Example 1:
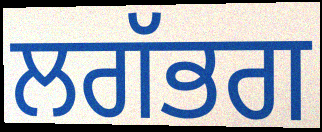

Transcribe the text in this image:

ਲਗੱਭਗ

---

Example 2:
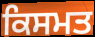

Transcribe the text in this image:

ਕਿਸਮਤ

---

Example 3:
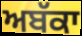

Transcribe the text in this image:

ਅਬੱਕਾ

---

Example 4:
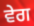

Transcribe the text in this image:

ਵੇਗ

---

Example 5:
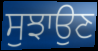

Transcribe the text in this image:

ਸੁਝਾਉਣ